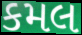
કમલ